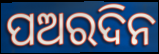
ପଅରଦିନ